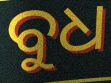
ବୁଧ